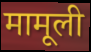
मामूली